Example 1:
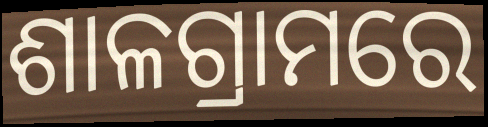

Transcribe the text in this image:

ଶାଳଗ୍ରାମରେ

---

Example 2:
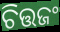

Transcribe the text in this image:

ଚିତ୍ତଜଂ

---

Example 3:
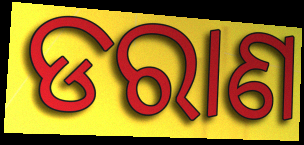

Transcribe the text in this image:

ଡରାଣ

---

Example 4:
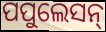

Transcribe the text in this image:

ପପୁଲେସନ୍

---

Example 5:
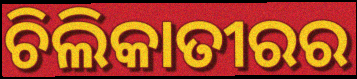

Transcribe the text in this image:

ଚିଲିକାତୀରର